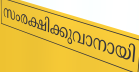
സംരക്ഷിക്കുവാനായി